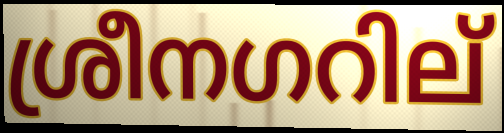
ശ്രീനഗറില്